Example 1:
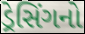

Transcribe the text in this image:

ડ્રેસિંગનો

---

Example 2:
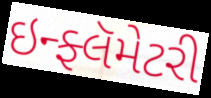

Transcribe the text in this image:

ઇન્ફ્લૅમેટરી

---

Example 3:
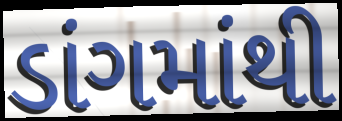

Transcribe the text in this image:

ડાંગમાંથી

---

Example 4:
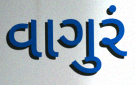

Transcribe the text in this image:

વાગુરં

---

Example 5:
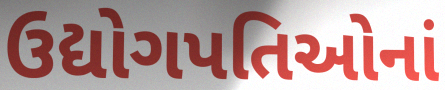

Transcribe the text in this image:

ઉદ્યોગપતિઓનાં